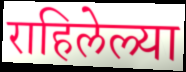
राहिलेल्या